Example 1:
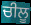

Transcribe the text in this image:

ਚੀਲੂ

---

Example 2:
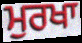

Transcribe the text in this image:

ਮੁਰਖਾ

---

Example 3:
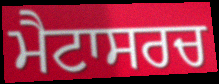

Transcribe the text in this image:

ਮੈਟਾਸਰਚ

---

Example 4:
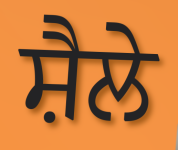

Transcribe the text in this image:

ਸ਼ੈਲੇ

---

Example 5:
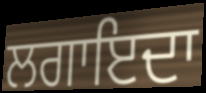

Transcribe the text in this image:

ਲਗਾਇਦਾ